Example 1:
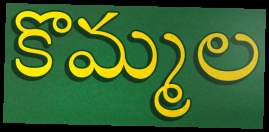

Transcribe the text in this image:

కొమ్మల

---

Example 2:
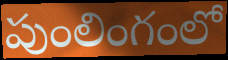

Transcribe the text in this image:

పుంలింగంలో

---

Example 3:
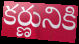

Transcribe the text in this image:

కర్ణునికి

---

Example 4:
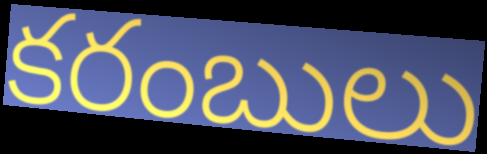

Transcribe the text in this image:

కరంబులు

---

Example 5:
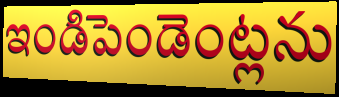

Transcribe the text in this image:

ఇండిపెండెంట్లను